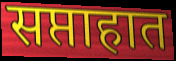
सप्ताहात